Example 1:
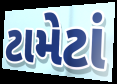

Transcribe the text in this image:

ટામેટાં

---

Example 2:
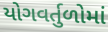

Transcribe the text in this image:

યોગવર્તુળોમાં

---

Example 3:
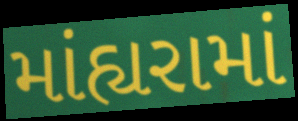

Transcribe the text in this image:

માંહ્યરામાં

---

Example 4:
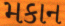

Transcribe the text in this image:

મકાન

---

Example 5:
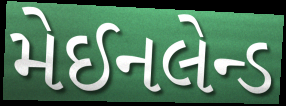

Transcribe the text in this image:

મેઈનલેન્ડ